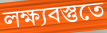
লক্ষ্যবস্তুতে